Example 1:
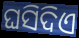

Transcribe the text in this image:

ଘସିଦିଏ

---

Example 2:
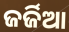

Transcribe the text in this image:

ଜର୍ଜିଆ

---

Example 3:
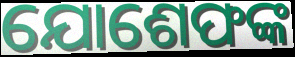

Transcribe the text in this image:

ଯୋଶେଫଙ୍କ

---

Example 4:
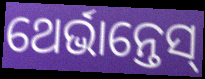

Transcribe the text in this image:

ଥେର୍ଭାନ୍ତେସ୍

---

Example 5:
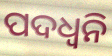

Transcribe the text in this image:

ପଦଧ୍ଵନି